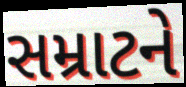
સમ્રાટને